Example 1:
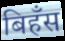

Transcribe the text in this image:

बिहँस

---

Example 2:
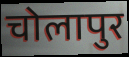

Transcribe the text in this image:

चोलापुर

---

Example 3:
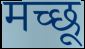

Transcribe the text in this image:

मच्छू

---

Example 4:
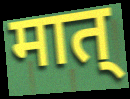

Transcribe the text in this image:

मात्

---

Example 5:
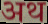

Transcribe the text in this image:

अथ